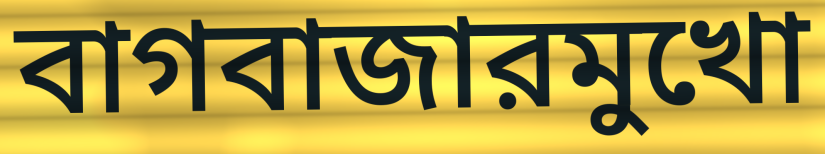
বাগবাজারমুখো